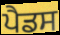
ਪੈਡਸ